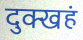
दुक्खहं